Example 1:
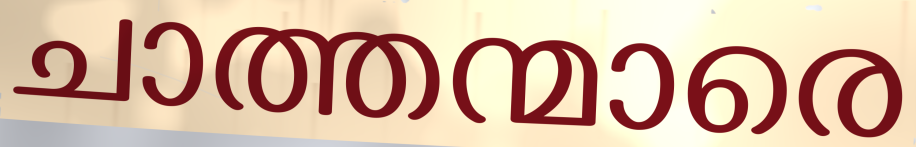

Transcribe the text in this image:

ചാത്തന്മാരെ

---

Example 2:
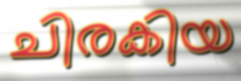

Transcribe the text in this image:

ചിരകിയ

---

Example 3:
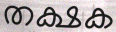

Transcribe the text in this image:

തക്ഷക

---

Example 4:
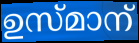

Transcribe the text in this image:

ഉസ്മാന്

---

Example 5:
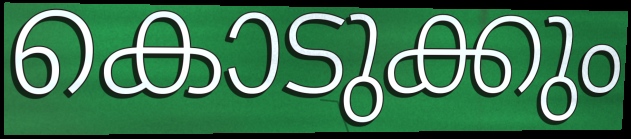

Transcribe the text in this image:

കൊടുക്കും